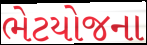
ભેટયોજના